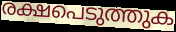
രക്ഷപെടുത്തുക